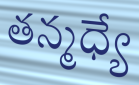
తన్మధ్యే